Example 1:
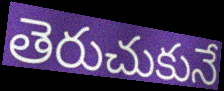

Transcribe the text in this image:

తెరుచుకునే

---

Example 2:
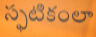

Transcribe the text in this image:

స్ఫటికంలా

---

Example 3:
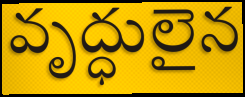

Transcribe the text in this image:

వృద్ధులైన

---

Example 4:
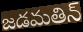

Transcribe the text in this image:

జడమతిన్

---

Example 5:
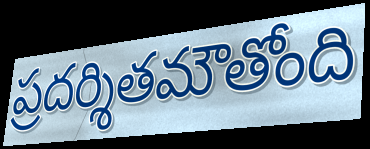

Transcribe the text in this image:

ప్రదర్శితమౌతోంది